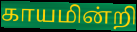
காயமின்றி